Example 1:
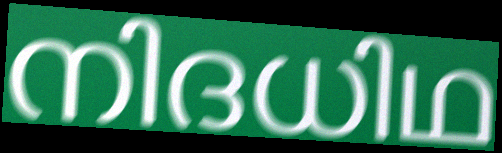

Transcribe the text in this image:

നിദധിഥ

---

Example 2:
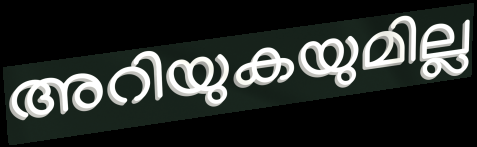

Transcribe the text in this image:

അറിയുകയുമില്ല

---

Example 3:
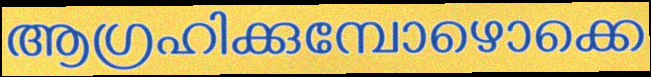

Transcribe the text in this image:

ആഗ്രഹിക്കുമ്പോഴൊക്കെ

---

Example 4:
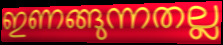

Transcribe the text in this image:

ഇണങ്ങുന്നതല്ല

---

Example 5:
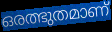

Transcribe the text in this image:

ഒരത്ഭുതമാണ്